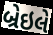
બ્રેઇલે